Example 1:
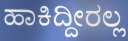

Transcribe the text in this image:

ಹಾಕಿದ್ದೀರಲ್ಲ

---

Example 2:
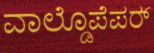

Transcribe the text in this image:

ವಾಲ್ಡೊಪೆಪರ್‍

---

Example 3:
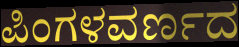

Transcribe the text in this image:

ಪಿಂಗಳವರ್ಣದ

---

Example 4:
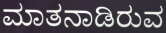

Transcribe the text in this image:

ಮಾತನಾಡಿರುವ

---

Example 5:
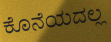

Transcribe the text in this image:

ಕೊನೆಯದಲ್ಲ